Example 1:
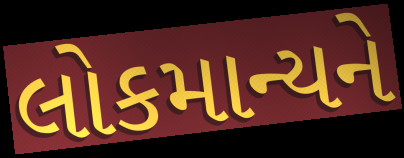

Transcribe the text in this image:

લોકમાન્યને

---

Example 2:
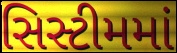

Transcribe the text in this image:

સિસ્ટીમમાં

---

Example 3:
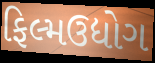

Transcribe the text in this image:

ફિલ્મઉદ્યોગ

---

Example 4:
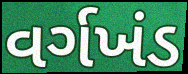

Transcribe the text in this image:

વર્ગખંડ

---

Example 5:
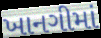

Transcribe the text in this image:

ખાનગીમાં